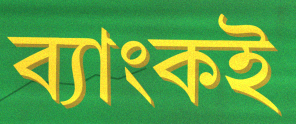
ব্যাংকই